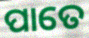
ପାତେ